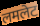
लमलेट